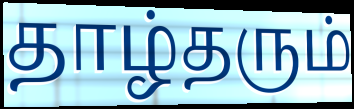
தாழ்தரும்